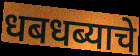
धबधब्याचे